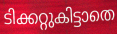
ടിക്കറ്റുകിട്ടാതെ